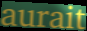
aurait